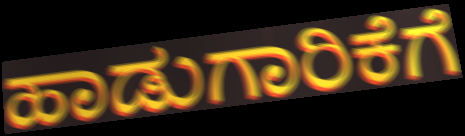
ಹಾಡುಗಾರಿಕೆಗೆ